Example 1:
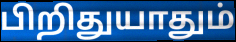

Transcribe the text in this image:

பிறிதுயாதும்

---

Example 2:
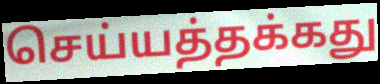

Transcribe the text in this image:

செய்யத்தக்கது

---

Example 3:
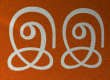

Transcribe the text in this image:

இஇ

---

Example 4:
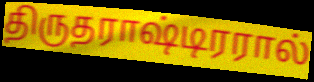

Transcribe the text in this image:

திருதராஷ்டிரரால்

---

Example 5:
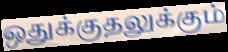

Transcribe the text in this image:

ஒதுக்குதலுக்கும்